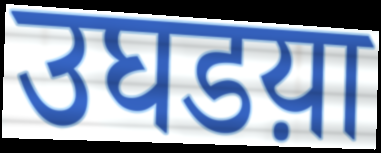
उघडय़ा